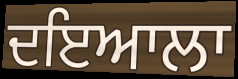
ਦਇਆਲਾ